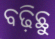
ବଢ଼ିଛୁ